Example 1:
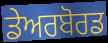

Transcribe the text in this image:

ਡੇਅਰਬੋਰਡ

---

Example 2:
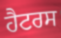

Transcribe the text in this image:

ਹੈਟਰਸ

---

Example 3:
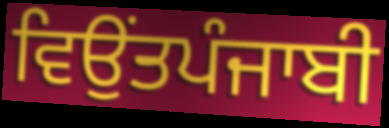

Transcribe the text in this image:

ਵਿਉਂਤਪੰਜਾਬੀ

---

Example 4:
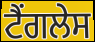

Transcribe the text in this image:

ਟੈਂਗਲੇਸ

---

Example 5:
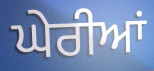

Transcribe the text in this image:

ਘੇਰੀਆਂ